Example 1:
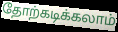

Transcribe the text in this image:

தோற்கடிக்கலாம்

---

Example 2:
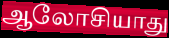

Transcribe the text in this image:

ஆலோசியாது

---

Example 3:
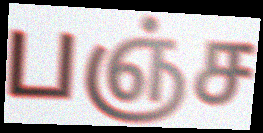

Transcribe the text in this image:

பஞ்ச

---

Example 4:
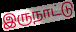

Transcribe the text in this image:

இருநாட்டு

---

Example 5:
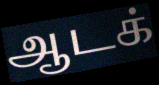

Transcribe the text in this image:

ஆடக்